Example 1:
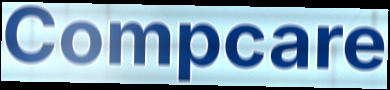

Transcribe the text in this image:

Compcare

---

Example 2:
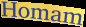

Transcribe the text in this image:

Homam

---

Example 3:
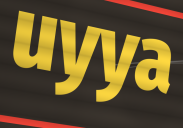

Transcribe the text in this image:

uyya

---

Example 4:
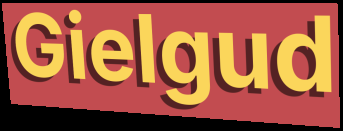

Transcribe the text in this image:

Gielgud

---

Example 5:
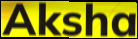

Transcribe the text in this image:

Aksha